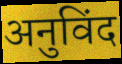
अनुविंद